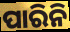
ପାରିନି